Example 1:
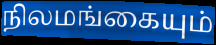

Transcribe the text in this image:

நிலமங்கையும்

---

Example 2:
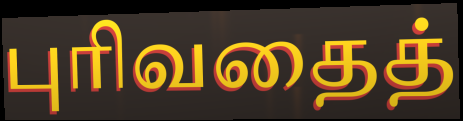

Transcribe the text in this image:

புரிவதைத்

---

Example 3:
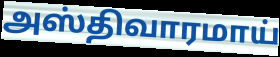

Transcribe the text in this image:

அஸ்திவாரமாய்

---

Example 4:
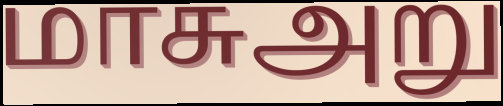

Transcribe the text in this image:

மாசுஅறு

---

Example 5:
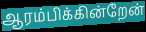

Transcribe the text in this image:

ஆரம்பிக்கின்றேன்